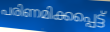
പരിണമിക്കപ്പെട്ട്